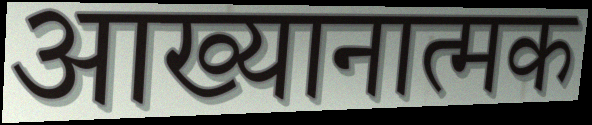
आख्यानात्मक